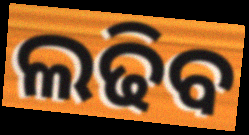
ଲଢିବ